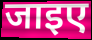
जाइए